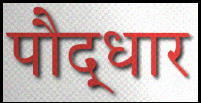
पौद्धार